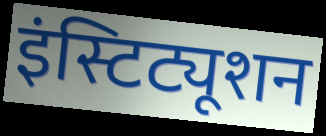
इंस्टिट्यूशन